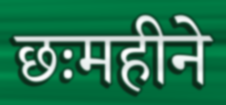
छःमहीने